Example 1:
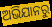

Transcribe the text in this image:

ଅଭିଯାନରୁ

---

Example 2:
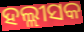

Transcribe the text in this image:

ହଲ୍ଲୀସକ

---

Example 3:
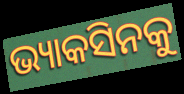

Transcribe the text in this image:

ଭ୍ୟାକସିନକୁ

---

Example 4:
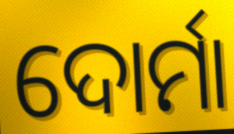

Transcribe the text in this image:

ଦୋର୍ମା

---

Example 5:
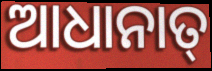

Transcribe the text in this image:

ଆଧାନାତ୍